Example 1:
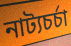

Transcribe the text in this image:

নাট্যচর্চা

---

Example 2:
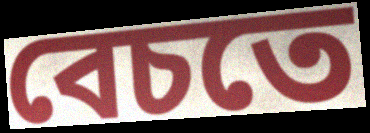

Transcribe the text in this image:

বেচতে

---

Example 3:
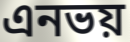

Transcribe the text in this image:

এনভয়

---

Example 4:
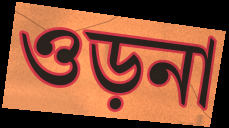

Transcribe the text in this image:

ওড়না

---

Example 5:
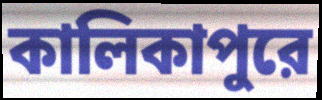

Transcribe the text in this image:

কালিকাপুরে